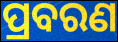
ପ୍ରବରଣ